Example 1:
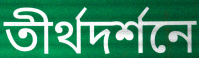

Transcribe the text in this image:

তীর্থদর্শনে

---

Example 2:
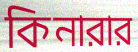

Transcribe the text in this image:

কিনারার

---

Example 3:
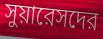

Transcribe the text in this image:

সুয়ারেসদের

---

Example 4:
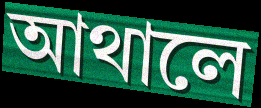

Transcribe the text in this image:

আথালে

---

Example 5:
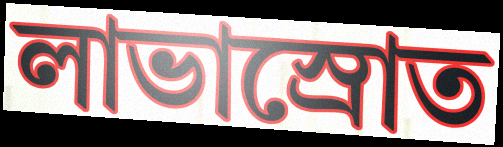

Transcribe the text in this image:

লাভাস্রোত